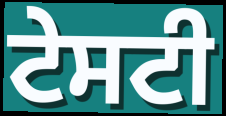
ਟੇਸਟੀ